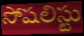
సోషలిస్టు